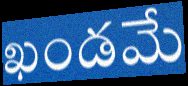
ఖండమే